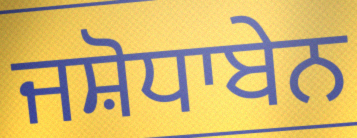
ਜਸ਼ੋਧਾਬੇਨ